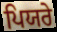
ਪਿਯਰੇ